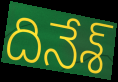
దినేశ్